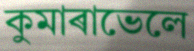
কুমাৰাভেলে